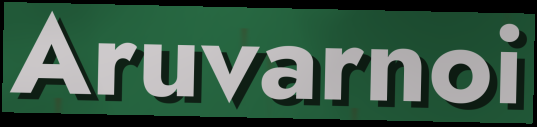
Aruvarnoi